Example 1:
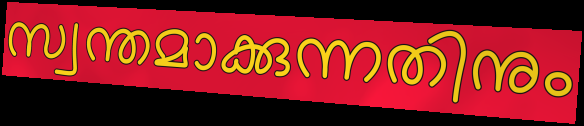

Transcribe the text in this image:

സ്വന്തമാക്കുന്നതിനും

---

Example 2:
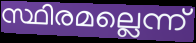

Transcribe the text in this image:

സ്ഥിരമല്ലെന്ന്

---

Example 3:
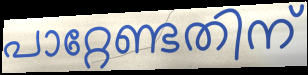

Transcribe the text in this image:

പാറ്റേണ്ടതിന്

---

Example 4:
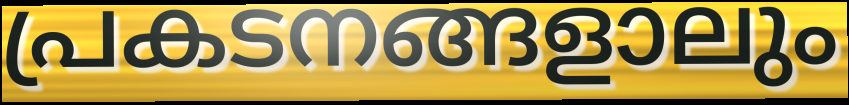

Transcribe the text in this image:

പ്രകടനങ്ങളാലും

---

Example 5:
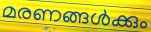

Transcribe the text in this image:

മരണങ്ങൾക്കും